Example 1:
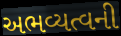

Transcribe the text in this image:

અભવ્યત્વની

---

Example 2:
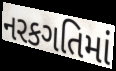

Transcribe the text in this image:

નરકગતિમાં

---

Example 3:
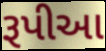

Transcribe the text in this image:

રૂપીઆ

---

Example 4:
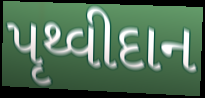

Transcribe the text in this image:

પૃથ્વીદાન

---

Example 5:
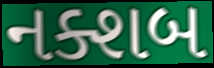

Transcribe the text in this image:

નક્શબ